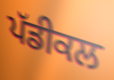
ਪੱਡੀਕਲ